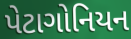
પેટાગોનિયન